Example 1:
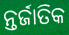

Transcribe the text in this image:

ନ୍ତର୍ଜାତିକ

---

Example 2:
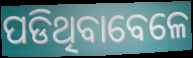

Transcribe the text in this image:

ପଡିଥିବାବେଳେ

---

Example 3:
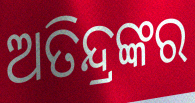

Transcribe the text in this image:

ଅତିନ୍ଦ୍ରଙ୍କର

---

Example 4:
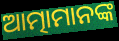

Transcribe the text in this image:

ଆତ୍ମାମାନଙ୍କ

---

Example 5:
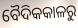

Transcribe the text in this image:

ବୈଦିକକାଳରୁ